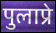
पुलाप्रे